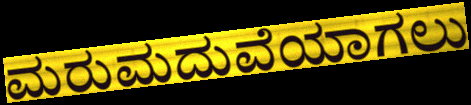
ಮರುಮದುವೆಯಾಗಲು